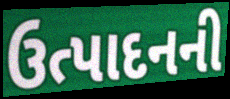
ઉત્પાદનની